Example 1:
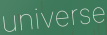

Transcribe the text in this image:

universe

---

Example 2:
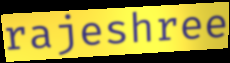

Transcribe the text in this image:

rajeshree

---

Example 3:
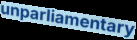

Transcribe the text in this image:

unparliamentary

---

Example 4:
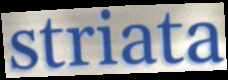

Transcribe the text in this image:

striata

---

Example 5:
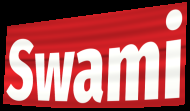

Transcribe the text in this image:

Swami